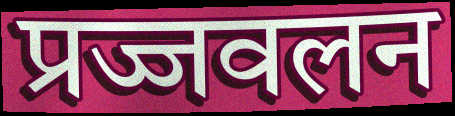
प्रज्जवलन